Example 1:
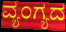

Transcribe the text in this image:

ವ್ಯಂಗ್ಯದ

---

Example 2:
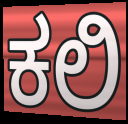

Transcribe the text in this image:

ಕಲಿ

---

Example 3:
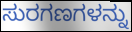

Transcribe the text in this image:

ಸುರಗಣಗಳನ್ನು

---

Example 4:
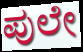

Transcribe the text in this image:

ಪುಲೇ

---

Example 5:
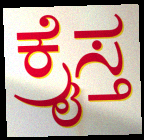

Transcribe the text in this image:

ಕ್ರೈಸ್ತ